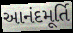
આનંદમૂર્તિ